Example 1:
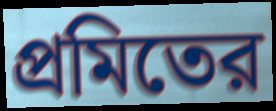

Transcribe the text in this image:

প্রমিতের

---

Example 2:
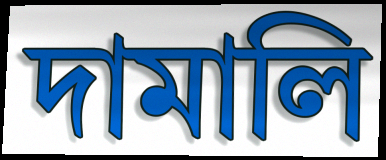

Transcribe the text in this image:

দামালি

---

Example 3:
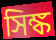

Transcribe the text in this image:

সিঙ্ক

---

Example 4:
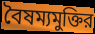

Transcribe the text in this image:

বৈষম্যমুক্তির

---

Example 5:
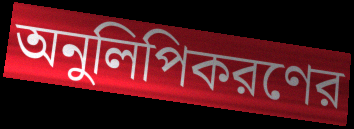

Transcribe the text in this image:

অনুলিপিকরণের